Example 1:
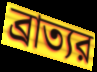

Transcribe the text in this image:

ব্রাত্যর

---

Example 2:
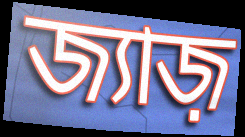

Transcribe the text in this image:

জ্যাজ়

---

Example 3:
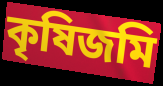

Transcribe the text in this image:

কৃষিজমি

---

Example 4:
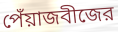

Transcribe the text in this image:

পেঁয়াজবীজের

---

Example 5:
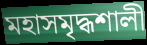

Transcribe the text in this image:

মহাসমৃদ্ধশালী